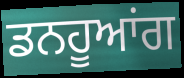
ਡਨਹੂਆਂਗ